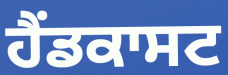
ਹੈਂਡਕਾਸਟ